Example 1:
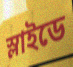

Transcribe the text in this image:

স্লাইডে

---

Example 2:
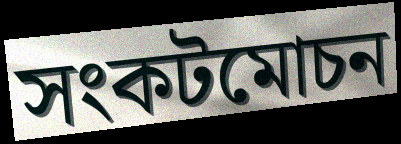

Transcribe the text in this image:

সংকটমোচন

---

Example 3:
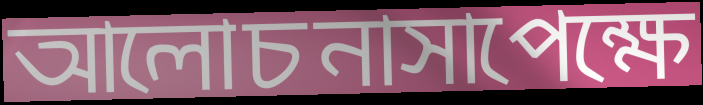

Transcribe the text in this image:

আলোচনাসাপেক্ষে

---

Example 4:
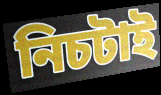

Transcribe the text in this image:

নিচটাই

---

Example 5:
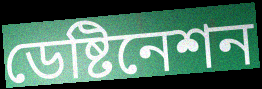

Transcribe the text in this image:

ডেষ্টিনেশন